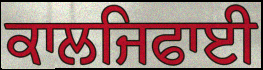
ਕਾਲਜਿਫਾਈ